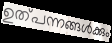
ഉത്പന്നങ്ങൾക്കും